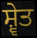
ਸ਼੍ਵੇਤ